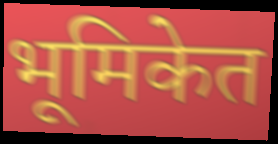
भूमिकेत